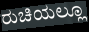
ರುಚಿಯಲ್ಲೂ